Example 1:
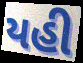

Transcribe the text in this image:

યહી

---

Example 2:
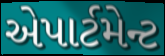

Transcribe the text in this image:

એપાર્ટમેન્ટ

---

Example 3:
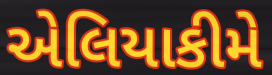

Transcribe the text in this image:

એલિયાકીમે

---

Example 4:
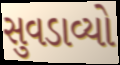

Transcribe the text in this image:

સુવડાવ્યો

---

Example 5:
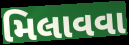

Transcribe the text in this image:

મિલાવવા